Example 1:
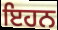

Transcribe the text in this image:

ਇਹਨ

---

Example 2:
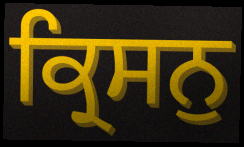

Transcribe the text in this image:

ਕ੍ਰਿਸਨੁ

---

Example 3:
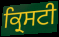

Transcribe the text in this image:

ਕ੍ਰਿਸਟੀ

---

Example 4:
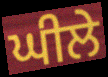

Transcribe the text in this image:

ਘੀਲੇ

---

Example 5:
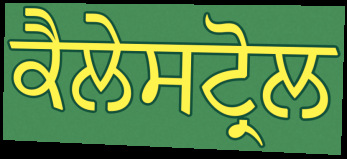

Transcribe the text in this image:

ਕੈਲੇਸਟ੍ਰੋਲ